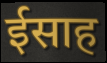
ईसाह